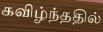
கவிழ்ந்ததில்